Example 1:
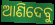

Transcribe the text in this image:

ଆଣିଦେବୁ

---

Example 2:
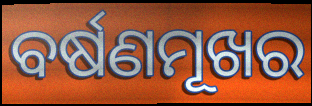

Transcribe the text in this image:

ବର୍ଷଣମୂଖର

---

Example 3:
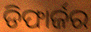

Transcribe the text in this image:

ଡିଫାର୍ଜର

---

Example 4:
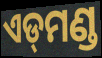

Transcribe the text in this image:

ଏଡ୍‌ମଣ୍ଡ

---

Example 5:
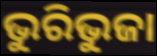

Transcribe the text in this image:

ଭୁରିଭୁଜା